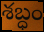
శబ్ధం